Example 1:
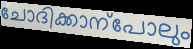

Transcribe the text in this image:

ചോദിക്കാന്പോലും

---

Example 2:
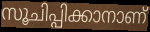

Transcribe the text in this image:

സൂചിപ്പിക്കാനാണ്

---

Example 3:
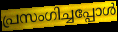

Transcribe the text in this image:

പ്രസംഗിച്ചപ്പോൾ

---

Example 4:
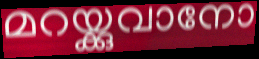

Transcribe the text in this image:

മറയ്ക്കുവാനോ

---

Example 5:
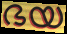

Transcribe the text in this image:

ഭയ